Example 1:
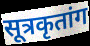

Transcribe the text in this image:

सूत्रकृतांग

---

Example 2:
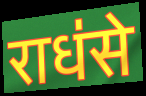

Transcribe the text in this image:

राध॑से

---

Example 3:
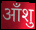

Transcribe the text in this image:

आँशु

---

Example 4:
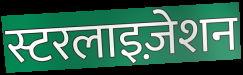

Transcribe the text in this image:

स्टरलाइज़ेशन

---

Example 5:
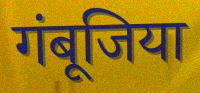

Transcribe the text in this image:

गंबूजिया